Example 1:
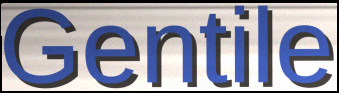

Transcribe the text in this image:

Gentile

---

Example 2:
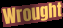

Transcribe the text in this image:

Wrought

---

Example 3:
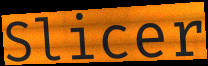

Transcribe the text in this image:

Slicer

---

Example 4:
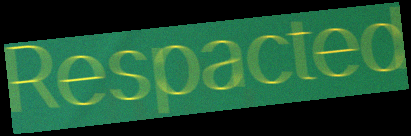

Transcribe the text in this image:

Respacted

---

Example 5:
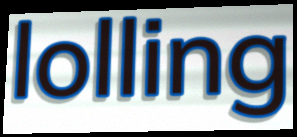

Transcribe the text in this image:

lolling